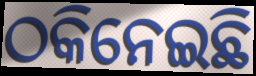
ଠକିନେଇଛି